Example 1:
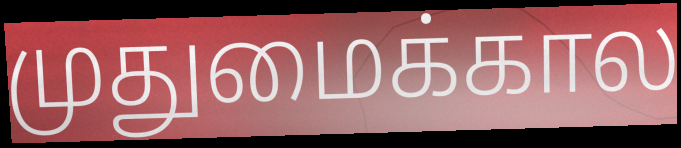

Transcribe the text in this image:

முதுமைக்கால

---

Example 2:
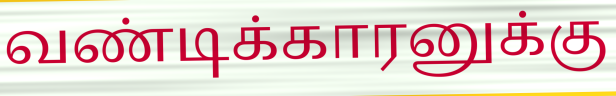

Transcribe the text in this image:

வண்டிக்காரனுக்கு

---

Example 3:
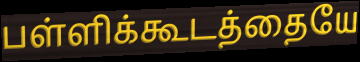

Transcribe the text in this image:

பள்ளிக்கூடத்தையே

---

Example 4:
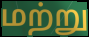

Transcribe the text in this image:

மற்று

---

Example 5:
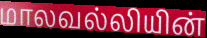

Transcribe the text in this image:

மாலவல்லியின்